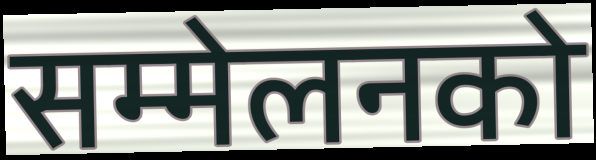
सम्मेलनको